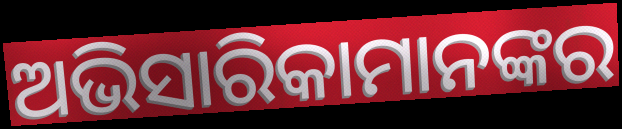
ଅଭିସାରିକାମାନଙ୍କର